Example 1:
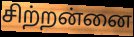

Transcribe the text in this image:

சிற்றன்னை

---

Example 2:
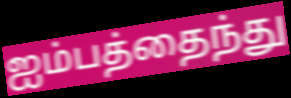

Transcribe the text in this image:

ஐம்பத்தைந்து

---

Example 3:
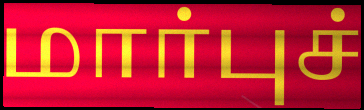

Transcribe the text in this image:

மார்புச்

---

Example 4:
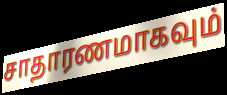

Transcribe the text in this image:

சாதாரணமாகவும்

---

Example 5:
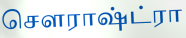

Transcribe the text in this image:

சௌராஷ்ட்ரா